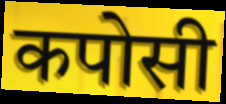
कपोसी